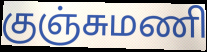
குஞ்சுமணி